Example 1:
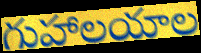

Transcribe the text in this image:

గుహాలయాల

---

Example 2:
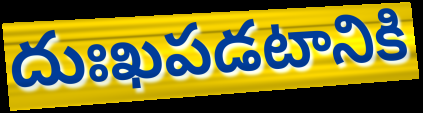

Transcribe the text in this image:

దుఃఖపడటానికి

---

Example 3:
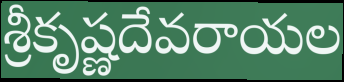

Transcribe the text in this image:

శ్రీకృష్ణదేవరాయల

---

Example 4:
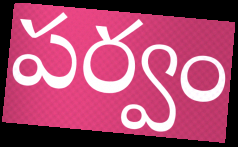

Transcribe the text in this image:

పర్వం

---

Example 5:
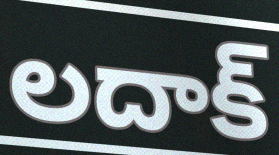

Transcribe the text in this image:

లదాక్